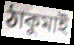
ঠাকুমাই